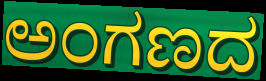
ಅಂಗಣದ